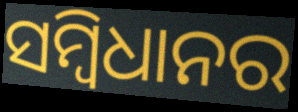
ସମ୍ବିଧାନର